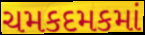
ચમકદમકમાં